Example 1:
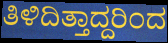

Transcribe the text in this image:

ತಿಳಿದಿತ್ತಾದ್ದರಿಂದ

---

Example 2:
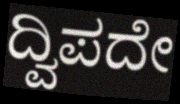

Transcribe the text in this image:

ದ್ವಿಪದೇ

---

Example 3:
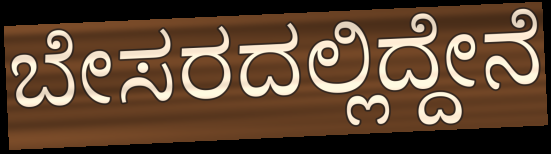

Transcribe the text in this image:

ಬೇಸರದಲ್ಲಿದ್ದೇನೆ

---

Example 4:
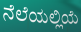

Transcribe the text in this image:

ನೆಲೆಯಲ್ಲಿಯೆ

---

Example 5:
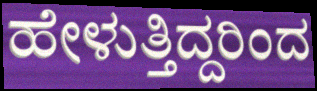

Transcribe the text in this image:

ಹೇಳುತ್ತಿದ್ದರಿಂದ